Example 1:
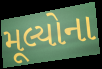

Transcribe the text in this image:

મૂલ્યોના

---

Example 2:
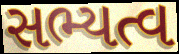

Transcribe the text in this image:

સભ્યત્વ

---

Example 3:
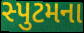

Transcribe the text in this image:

સ્પુટમના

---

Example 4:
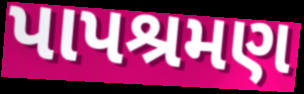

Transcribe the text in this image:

પાપશ્રમણ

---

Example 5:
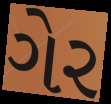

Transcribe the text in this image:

ગેર